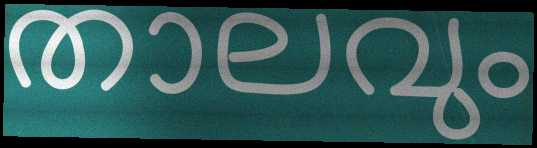
താലവും